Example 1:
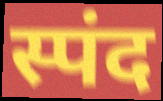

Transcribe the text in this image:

स्पंद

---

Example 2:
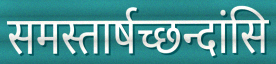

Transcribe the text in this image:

समस्तार्षच्छन्दांसि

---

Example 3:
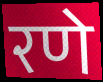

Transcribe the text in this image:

रणे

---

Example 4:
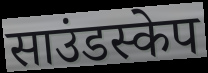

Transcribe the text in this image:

साउंडस्केप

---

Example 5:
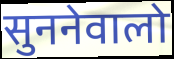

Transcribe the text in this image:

सुननेवालो